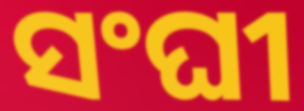
ସଂଘୀ